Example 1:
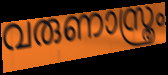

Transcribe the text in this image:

വരുണാസ്ത്രം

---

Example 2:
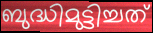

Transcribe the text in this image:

ബുദ്ധിമുട്ടിച്ചത്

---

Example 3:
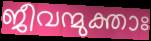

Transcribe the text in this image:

ജീവന്മുക്താഃ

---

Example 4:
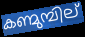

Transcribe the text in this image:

കണ്മുമ്പില്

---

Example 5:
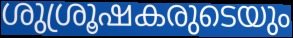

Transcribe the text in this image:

ശുശ്രൂഷകരുടെയും